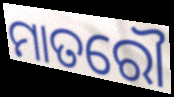
ମାତରୌ